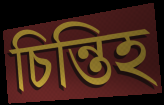
চিন্তিহ